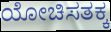
ಯೋಚಿಸತಕ್ಕ